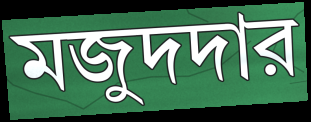
মজুদদার